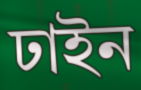
ঢাইন